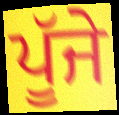
ਪੂੱਜੇ